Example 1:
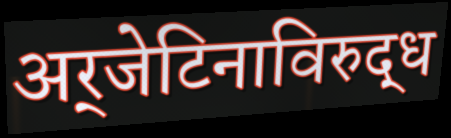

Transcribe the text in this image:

अर्जेटिनाविरुद्ध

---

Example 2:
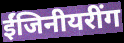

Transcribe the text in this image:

ईंजिनीयरींग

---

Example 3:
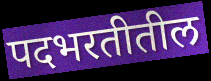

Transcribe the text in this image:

पदभरतीतील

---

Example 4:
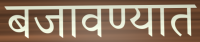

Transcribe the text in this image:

बजावण्यात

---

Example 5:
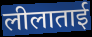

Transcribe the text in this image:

लीलाताई